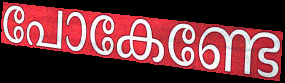
പോകേണ്ടേ